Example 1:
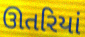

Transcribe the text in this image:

ઊતરિયાં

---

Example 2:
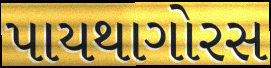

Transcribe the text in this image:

પાયથાગોરસ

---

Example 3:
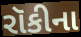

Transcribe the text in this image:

રૉકીના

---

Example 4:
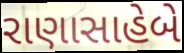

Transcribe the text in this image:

રાણાસાહેબે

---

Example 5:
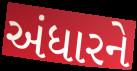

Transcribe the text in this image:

અંધારને